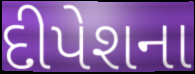
દીપેશના